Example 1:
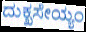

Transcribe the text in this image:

ದುಕ್ಖಸೇಯ್ಯಂ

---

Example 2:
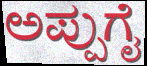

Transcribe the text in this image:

ಅಪ್ಪುಗೈ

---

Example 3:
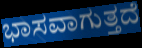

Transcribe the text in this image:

ಭಾಸವಾಗುತ್ತದೆ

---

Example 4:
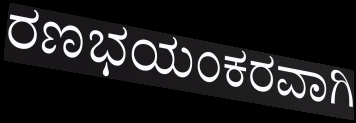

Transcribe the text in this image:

ರಣಭಯಂಕರವಾಗಿ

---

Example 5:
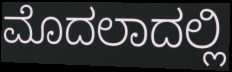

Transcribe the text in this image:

ಮೊದಲಾದಲ್ಲಿ